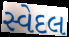
સ્વેદલ